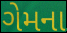
ગેમના